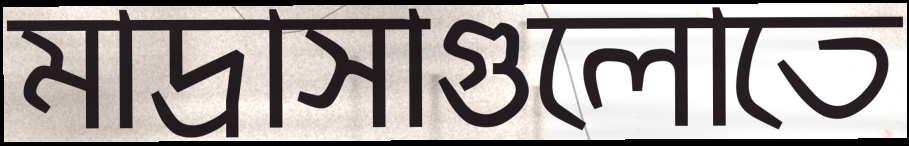
মাদ্রাসাগুলোতে